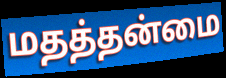
மதத்தன்மை